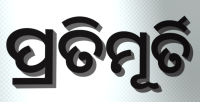
ପ୍ରତିମୂର୍ତି